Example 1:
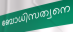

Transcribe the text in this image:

ബോധിസത്വനെ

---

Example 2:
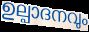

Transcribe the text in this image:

ഉല്പാദനവും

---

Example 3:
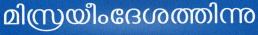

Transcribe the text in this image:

മിസ്രയീംദേശത്തിന്നു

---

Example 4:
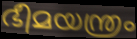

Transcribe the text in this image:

ഭീമയന്ത്രം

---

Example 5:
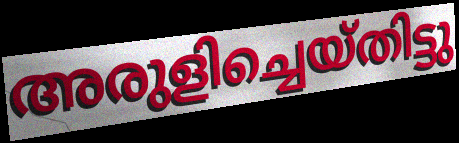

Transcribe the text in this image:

അരുളിച്ചെയ്തിട്ടു